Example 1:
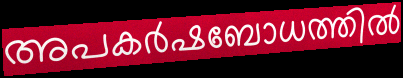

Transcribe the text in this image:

അപകർഷബോധത്തിൽ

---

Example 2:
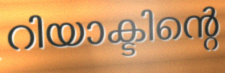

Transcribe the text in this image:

റിയാക്ടിന്റെ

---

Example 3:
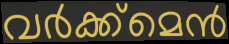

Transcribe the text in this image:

വർക്ക്മെൻ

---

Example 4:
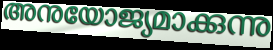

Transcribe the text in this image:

അനുയോജ്യമാക്കുന്നു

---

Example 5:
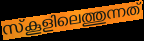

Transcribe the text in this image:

സ്‌കൂളിലെത്തുന്നത്